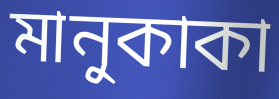
মানুকাকা